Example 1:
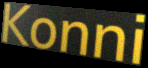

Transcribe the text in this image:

Konni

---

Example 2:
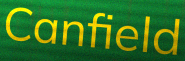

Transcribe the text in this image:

Canfield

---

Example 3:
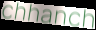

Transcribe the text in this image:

chhanch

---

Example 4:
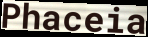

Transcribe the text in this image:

Phaceia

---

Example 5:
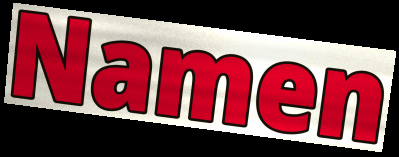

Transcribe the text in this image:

Namen